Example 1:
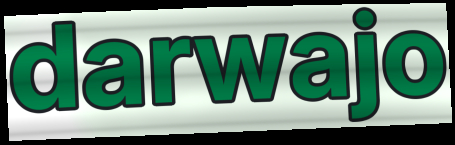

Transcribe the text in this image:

darwajo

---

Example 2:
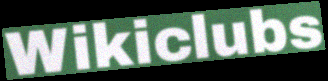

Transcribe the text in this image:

Wikiclubs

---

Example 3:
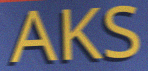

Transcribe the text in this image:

AKS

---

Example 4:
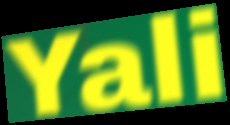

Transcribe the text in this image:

Yali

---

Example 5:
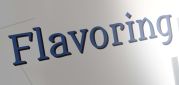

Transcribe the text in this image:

Flavoring